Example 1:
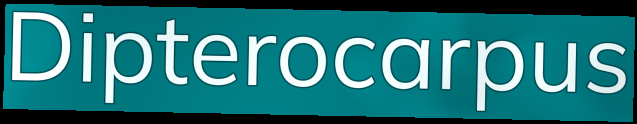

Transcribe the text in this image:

Dipterocarpus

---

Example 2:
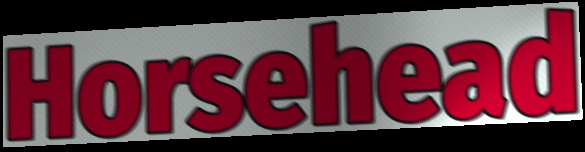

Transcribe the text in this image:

Horsehead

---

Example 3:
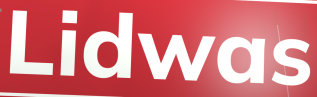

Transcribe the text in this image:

Lidwas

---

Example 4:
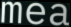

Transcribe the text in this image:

mea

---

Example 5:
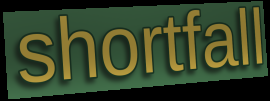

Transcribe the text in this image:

shortfall